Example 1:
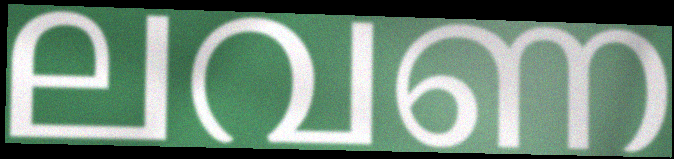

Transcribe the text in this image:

ലവണ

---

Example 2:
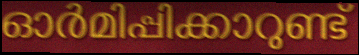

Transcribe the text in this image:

ഓർമിപ്പിക്കാറുണ്ട്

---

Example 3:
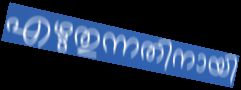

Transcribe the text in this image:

എഴുതുന്നതിനായി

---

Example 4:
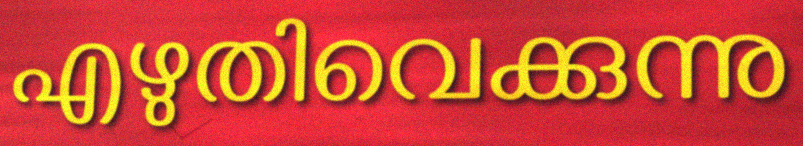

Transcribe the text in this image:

എഴുതിവെക്കുന്നു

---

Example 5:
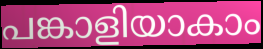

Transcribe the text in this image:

പങ്കാളിയാകാം